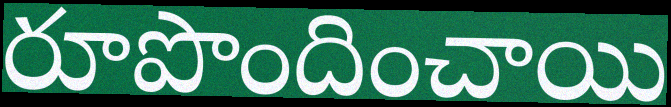
రూపొందించాయి